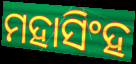
ମହାସିଂହ